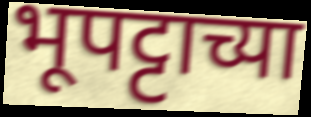
भूपट्टाच्या